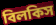
বিলকিস